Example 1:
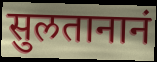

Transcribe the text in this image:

सुलतानानं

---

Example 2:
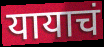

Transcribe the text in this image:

यायाचं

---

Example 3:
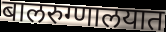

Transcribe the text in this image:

बालरुग्णालयात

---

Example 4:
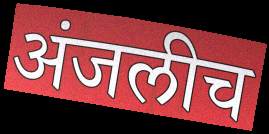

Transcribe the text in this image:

अंजलीच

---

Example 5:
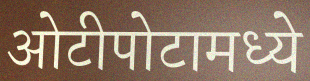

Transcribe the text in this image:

ओटीपोटामध्ये